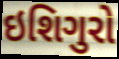
ઇશિગુરો